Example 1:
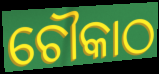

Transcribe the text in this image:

ଚୌକାଠ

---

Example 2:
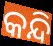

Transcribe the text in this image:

କନ୍ଦି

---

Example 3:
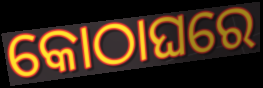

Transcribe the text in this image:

କୋଠାଘରେ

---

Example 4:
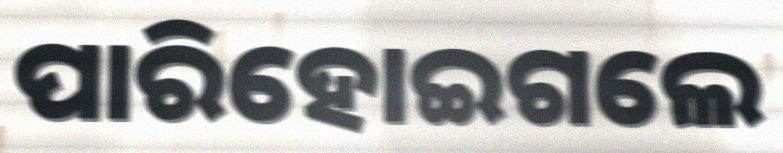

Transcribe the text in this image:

ପାରିହୋଇଗଲେ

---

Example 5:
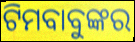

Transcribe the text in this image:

ଟିମବାବୁଙ୍କର